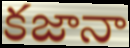
కజానా